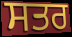
ਸਤਰ